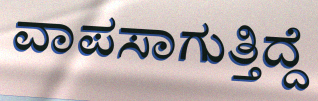
ವಾಪಸಾಗುತ್ತಿದ್ದೆ